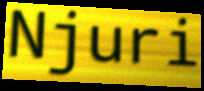
Njuri